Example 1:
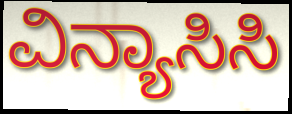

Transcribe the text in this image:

ವಿನ್ಯಾಸಿಸಿ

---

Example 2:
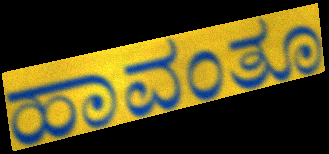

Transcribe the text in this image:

ಹಾವಂತೂ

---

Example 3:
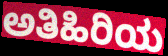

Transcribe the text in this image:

ಅತಿಹಿರಿಯ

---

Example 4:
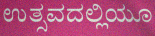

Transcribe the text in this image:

ಉತ್ಸವದಲ್ಲಿಯೂ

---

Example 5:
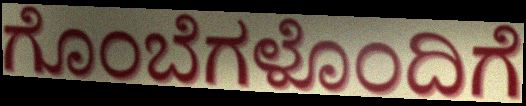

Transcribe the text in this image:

ಗೊಂಬೆಗಳೊಂದಿಗೆ